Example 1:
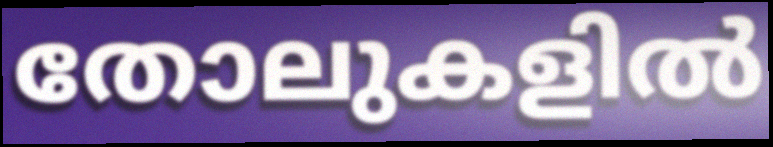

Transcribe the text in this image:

തോലുകളിൽ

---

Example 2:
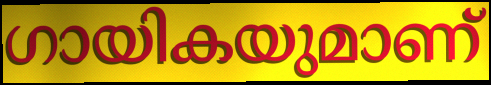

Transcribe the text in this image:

ഗായികയുമാണ്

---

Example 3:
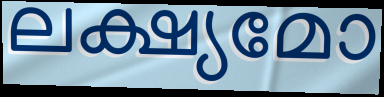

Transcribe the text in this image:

ലക്ഷ്യമോ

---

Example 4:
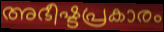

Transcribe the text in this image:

അഭീഷ്ടപ്രകാരം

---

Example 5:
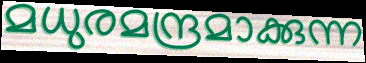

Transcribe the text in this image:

മധുരമന്ദ്രമാക്കുന്ന